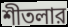
শীতলার